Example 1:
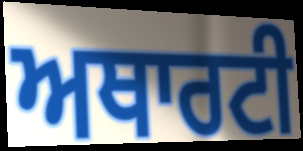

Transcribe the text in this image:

ਅਥਾਰਟੀ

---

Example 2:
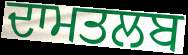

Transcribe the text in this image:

ਦਾਮਤਲਬ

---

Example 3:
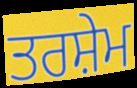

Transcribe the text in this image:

ਤਰਸ਼ੇਮ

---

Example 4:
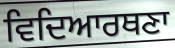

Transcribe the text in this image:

ਵਿਦਿਆਰਥਣਾ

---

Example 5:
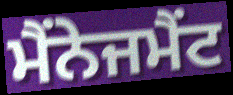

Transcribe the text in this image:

ਮੈਂਨੇਜਮੈਂਟ